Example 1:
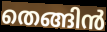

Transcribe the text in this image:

തെങ്ങിൻ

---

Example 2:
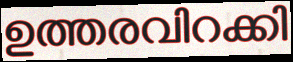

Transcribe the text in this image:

ഉത്തരവിറക്കി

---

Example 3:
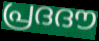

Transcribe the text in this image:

പ്രദദൗ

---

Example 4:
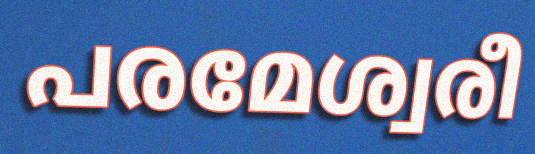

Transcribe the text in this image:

പരമേശ്വരീ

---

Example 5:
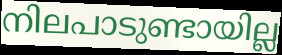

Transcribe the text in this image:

നിലപാടുണ്ടായില്ല